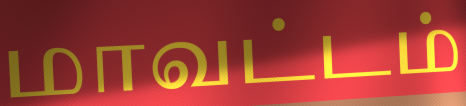
மாவட்டம்